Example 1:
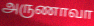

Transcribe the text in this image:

அருணாவா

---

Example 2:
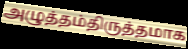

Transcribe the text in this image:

அழுத்தம்திருத்தமாக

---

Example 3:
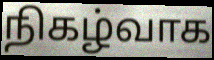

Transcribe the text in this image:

நிகழ்வாக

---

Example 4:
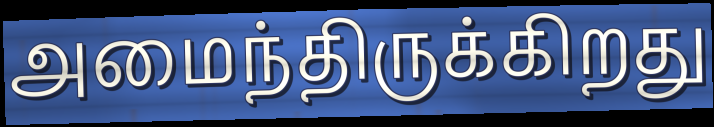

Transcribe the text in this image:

அமைந்திருக்கிறது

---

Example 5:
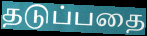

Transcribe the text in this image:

தடுப்பதை